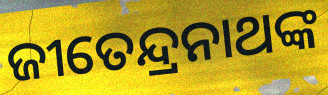
ଜୀତେନ୍ଦ୍ରନାଥଙ୍କ